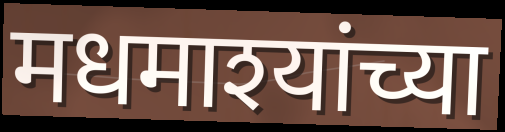
मधमाश्‍यांच्या